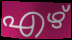
എഴ്